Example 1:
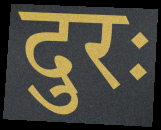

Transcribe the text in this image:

दुरः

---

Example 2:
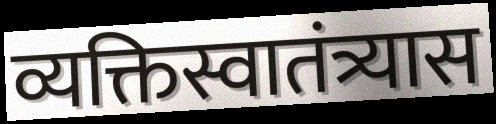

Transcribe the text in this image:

व्यक्तिस्वातंत्र्यास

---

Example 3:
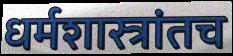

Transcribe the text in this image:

धर्मशास्त्रांतच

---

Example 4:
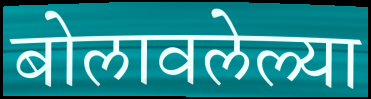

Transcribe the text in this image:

बोलावलेल्या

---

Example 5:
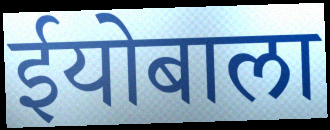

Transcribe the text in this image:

ईयोबाला